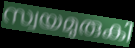
സ്വയമുരുകി